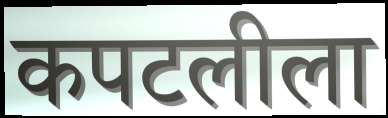
कपटलीला